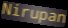
Nirupan